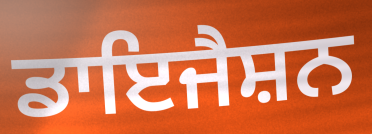
ਡਾਇਜੈਸ਼ਨ